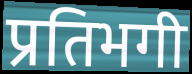
प्रतिभगी